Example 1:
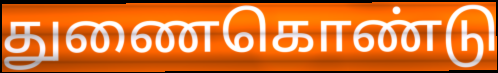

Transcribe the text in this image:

துணைகொண்டு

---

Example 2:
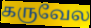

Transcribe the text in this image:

கருவேல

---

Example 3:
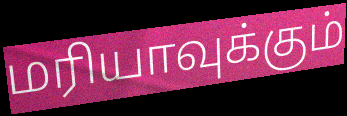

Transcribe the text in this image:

மரியாவுக்கும்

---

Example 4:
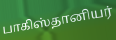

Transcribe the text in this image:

பாகிஸ்தானியர்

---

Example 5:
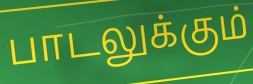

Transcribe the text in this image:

பாடலுக்கும்